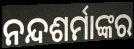
ନନ୍ଦଶର୍ମାଙ୍କର